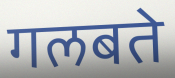
गलबते